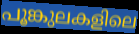
പൂങ്കുലകളിലെ